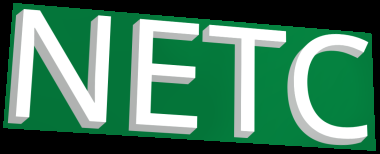
NETC